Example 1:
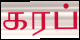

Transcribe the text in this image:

கரப்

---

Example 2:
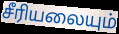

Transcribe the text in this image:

சீரியலையும்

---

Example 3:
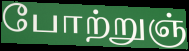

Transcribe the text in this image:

போற்றுஞ்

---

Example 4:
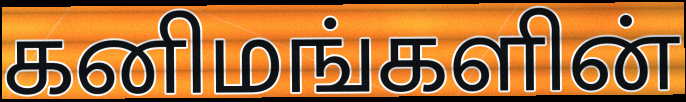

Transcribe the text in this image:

கனிமங்களின்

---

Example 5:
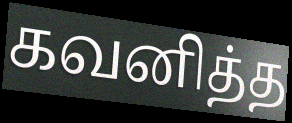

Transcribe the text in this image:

கவனித்த